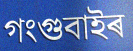
গংগুবাইৰ